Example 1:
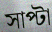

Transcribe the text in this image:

সাপ্টা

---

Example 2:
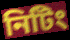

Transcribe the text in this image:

নিটিং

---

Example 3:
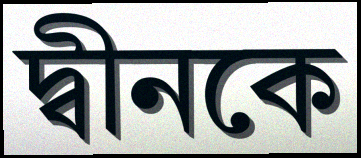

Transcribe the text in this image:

দ্বীনকে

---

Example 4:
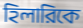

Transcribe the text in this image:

হিলারিকে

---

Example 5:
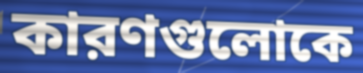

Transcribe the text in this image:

কারণগুলোকে